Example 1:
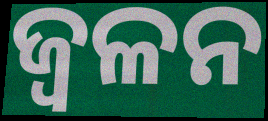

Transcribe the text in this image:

ଜ୍ଵଳନ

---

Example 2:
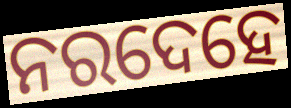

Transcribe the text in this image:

ନରଦେହେ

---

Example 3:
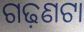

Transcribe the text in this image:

ଗଢ଼ଣଟା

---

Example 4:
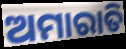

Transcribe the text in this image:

ଅମାରାତି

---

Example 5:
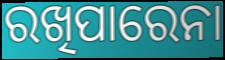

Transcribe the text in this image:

ରଖିପାରେନା